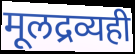
मूलद्रव्यही